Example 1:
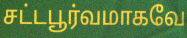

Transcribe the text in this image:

சட்டபூர்வமாகவே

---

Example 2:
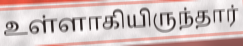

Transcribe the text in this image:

உள்ளாகியிருந்தார்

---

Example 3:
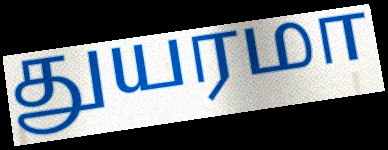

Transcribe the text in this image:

துயரமா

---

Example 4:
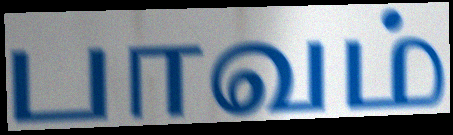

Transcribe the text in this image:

பாவம்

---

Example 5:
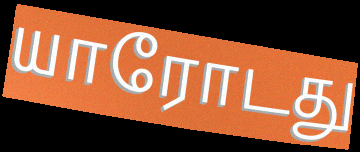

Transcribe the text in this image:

யாரோடது